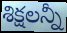
శిక్షలన్నీ